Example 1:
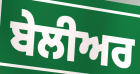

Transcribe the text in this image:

ਬੇਲੀਅਰ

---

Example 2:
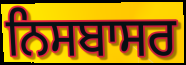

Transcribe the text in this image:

ਨਿਸਬਾਸਰ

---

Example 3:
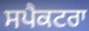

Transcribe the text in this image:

ਸਪੈਕਟਰਾ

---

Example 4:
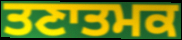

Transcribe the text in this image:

ਤਣਾਤਮਕ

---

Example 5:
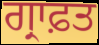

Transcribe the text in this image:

ਗ੍ਰਾਫ਼ਤ